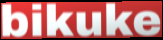
bikuke